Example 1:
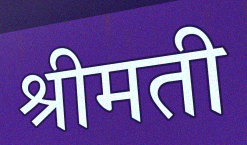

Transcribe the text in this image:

श्रीमती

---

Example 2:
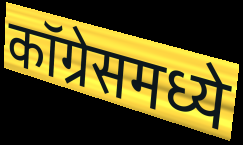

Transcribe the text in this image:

कॉग्रेसमध्ये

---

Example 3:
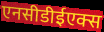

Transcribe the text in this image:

एनसीडीईएक्स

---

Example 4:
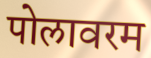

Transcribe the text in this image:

पोलावरम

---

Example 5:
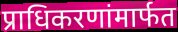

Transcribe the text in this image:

प्राधिकरणांमार्फत